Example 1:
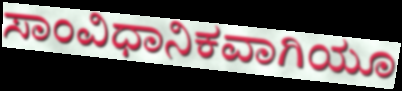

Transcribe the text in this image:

ಸಾಂವಿಧಾನಿಕವಾಗಿಯೂ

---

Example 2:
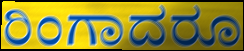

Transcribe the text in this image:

ರಿಂಗಾದರೂ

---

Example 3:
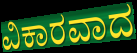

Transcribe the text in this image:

ವಿಕಾರವಾದ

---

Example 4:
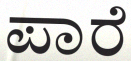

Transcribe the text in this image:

ಪಾರೆ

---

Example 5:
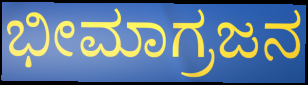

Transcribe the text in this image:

ಭೀಮಾಗ್ರಜನ